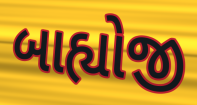
બાહ્યોજી